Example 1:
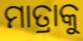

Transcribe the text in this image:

ମାତ୍ରାକୁ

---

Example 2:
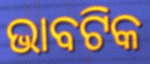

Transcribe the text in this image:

ଭାବଟିକ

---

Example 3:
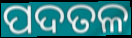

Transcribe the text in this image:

ପଦତଳ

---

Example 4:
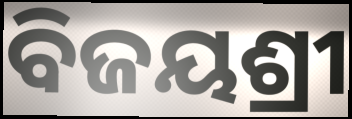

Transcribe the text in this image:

ବିଜୟଶ୍ରୀ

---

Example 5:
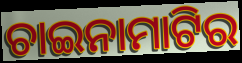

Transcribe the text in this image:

ଚାଇନାମାଟିର